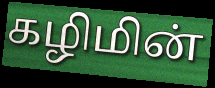
கழிமின்